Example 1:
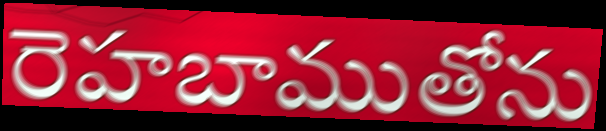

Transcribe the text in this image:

రెహబాముతోను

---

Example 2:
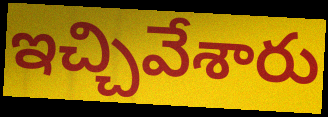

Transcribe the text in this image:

ఇచ్చివేశారు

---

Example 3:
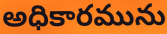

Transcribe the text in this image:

అధికారమును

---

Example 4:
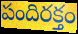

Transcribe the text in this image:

పందిరక్తం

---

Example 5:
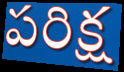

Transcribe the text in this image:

పరిక్ష